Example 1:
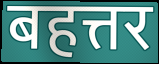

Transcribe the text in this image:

बहत्तर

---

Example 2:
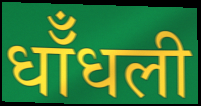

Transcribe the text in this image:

धॉँधली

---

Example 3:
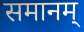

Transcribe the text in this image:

समानम्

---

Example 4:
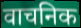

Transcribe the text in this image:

वाचनिक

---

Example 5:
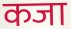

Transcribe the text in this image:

कजा